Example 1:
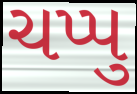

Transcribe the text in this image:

ચપ્પુ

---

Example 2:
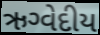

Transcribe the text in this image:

ઋગ્વેદીય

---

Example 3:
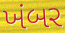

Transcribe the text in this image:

ખંબર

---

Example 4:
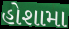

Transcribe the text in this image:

હોશામા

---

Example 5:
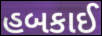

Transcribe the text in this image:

હબકાઈ